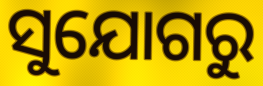
ସୁଯୋଗରୁ